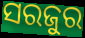
ସରଜୁର